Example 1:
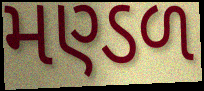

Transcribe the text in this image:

મણ્ડળ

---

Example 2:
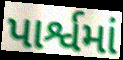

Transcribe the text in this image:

પાર્શ્વમાં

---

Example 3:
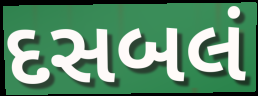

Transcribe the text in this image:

દસબલં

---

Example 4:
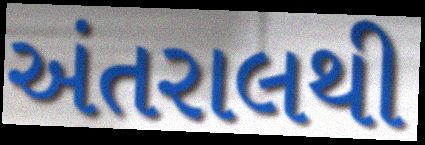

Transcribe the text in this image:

અંતરાલથી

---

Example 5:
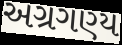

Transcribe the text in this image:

અગ્રગણ્ય